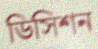
ডিসিশন